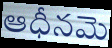
ఆధీనమె